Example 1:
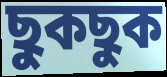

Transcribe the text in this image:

ছুকছুক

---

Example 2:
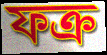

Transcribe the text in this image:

ফক্র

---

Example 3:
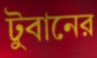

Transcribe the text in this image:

টুবানের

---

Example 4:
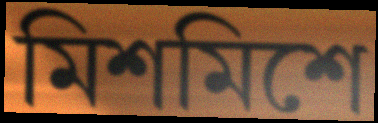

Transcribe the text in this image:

মিশমিশে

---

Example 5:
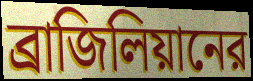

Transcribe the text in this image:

ব্রাজিলিয়ানের